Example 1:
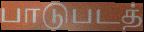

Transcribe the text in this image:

பாடுபடத்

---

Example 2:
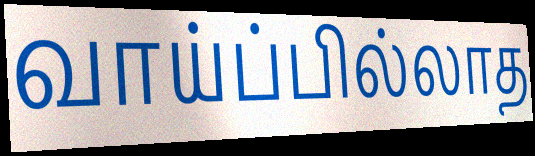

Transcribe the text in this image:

வாய்ப்பில்லாத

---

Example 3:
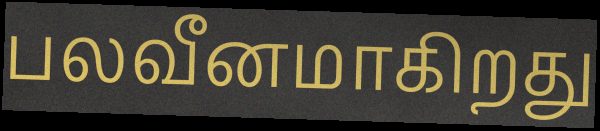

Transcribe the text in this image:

பலவீனமாகிறது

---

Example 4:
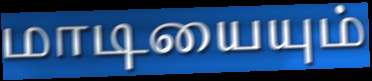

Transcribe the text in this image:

மாடியையும்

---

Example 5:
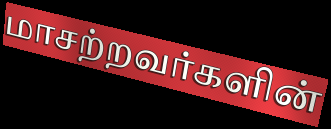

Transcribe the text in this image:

மாசற்றவர்களின்